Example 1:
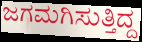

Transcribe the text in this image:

ಜಗಮಗಿಸುತ್ತಿದ್ದ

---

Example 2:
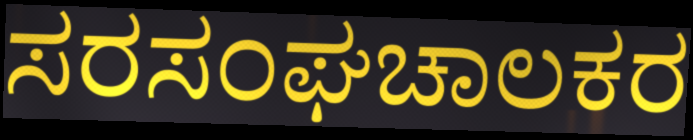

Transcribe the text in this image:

ಸರಸಂಘಚಾಲಕರ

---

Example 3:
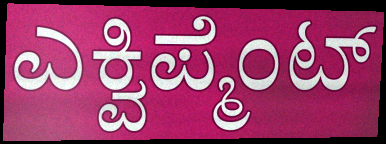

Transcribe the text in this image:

ಎಕ್ವಿಪ್ಮೆಂಟ್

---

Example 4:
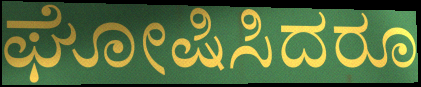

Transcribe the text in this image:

ಘೋಷಿಸಿದರೂ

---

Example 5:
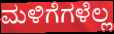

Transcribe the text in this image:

ಮಳಿಗೆಗಳೆಲ್ಲ